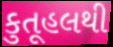
કુતૂહલથી